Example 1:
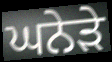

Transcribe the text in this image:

ਘਨੇੜੇ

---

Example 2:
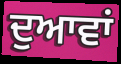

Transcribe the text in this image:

ਦੁਆਵਾਂ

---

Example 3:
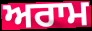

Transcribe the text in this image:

ਅਰਾਮ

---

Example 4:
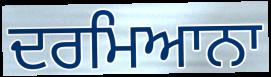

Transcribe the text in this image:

ਦਰਮਿਆਨਾ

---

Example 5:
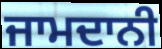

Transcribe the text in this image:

ਜਾਮਦਾਨੀ